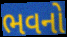
ભવનો